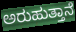
ಅರುಹುತ್ತಾನೆ